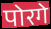
पोरगे